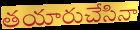
తయారుచేసినా